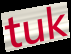
tuk